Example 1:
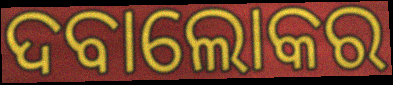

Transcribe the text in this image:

ଦବାଲୋକର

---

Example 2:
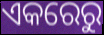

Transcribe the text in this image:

ଏକରେରୁ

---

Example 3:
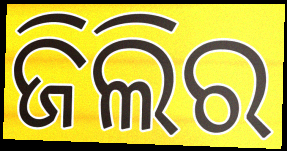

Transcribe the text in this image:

ଜିଲିର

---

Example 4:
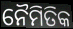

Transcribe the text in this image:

ନୈମିତିକ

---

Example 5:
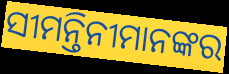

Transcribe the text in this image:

ସୀମନ୍ତିନୀମାନଙ୍କର